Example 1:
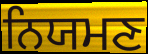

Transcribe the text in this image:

ਨਿਯਮਣ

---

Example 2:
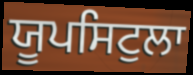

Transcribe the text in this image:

ਯੂਪਸਿਟੁਲਾ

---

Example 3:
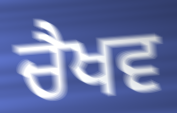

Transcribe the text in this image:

ਚੈਖਵ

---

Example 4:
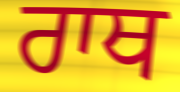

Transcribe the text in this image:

ਰਾਥ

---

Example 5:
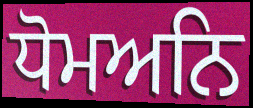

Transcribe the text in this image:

ਧੋਮਅਨਿ